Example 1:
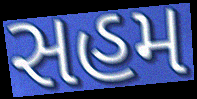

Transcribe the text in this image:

સહમ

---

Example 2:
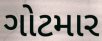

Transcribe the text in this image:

ગોટમાર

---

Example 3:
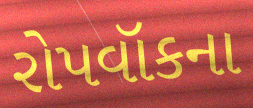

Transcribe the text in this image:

રોપવૉકના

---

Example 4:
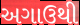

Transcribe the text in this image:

અગાઉથી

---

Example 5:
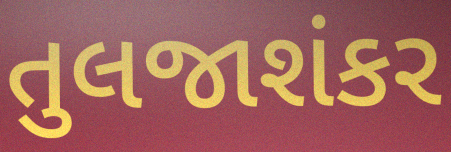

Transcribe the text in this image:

તુલજાશંકર